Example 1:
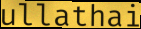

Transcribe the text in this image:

ullathai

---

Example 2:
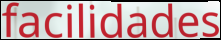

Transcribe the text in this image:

facilidades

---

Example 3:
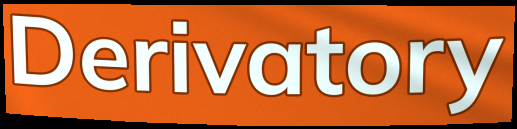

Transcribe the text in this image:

Derivatory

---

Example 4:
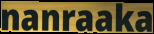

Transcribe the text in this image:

nanraaka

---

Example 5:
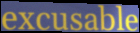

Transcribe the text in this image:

excusable